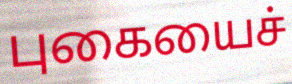
புகையைச்